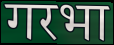
गरभा